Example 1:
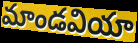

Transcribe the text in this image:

మాండవియా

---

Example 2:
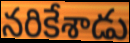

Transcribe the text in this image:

నరికేశాడు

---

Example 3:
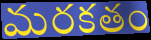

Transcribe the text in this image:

మరకతం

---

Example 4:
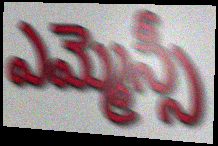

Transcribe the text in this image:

ఎమ్మెస్సీ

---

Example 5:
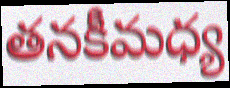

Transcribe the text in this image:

తనకీమధ్య